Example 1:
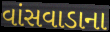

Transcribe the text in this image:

વાંસવાડાના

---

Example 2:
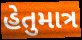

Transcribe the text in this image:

હેતુમાત્ર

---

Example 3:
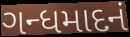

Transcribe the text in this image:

ગન્ધમાદનં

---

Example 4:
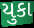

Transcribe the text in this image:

યુકા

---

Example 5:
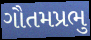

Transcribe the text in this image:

ગૌતમપ્રભુ